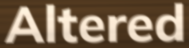
Altered